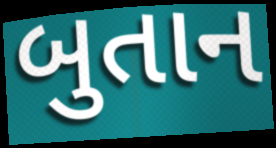
બુતાન